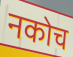
नकोच